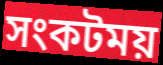
সংকটময়